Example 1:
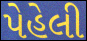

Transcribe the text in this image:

પેહેલી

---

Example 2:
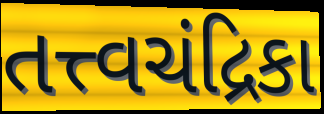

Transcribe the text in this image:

તત્ત્વચંદ્રિકા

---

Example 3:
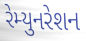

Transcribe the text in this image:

રેમ્યુનરેશન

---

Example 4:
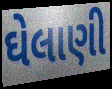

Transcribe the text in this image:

ઘેલાણી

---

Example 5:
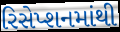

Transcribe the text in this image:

રિસેપ્શનમાંથી